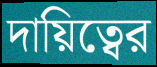
দায়িত্বের